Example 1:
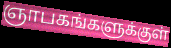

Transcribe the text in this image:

ஞாபகங்களுக்குள்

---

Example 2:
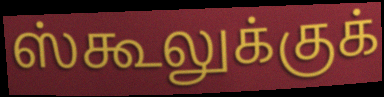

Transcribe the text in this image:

ஸ்கூலுக்குக்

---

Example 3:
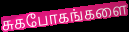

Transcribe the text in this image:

சுகபோகங்களை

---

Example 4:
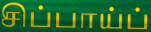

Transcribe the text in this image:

சிப்பாய்ப்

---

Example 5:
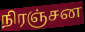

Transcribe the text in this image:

நிரஞ்சன